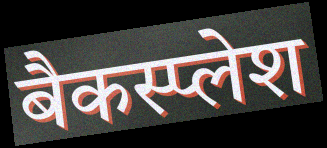
बैकस्प्लेश